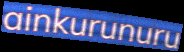
ainkurunuru